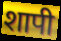
शापी